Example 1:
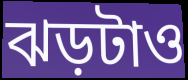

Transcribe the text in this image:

ঝড়টাও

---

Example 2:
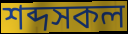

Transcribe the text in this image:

শব্দসকল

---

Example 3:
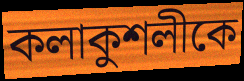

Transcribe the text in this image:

কলাকুশলীকে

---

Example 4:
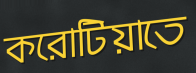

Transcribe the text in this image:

করোটিয়াতে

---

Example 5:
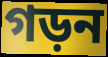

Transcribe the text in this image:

গড়ন